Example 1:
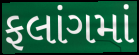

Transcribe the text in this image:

ફલાંગમાં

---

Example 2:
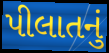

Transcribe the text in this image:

પીલાતનું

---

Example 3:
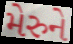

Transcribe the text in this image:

મેરુને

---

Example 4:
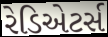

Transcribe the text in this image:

રેડિએટર્સ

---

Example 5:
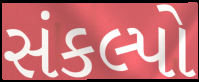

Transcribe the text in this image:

સંકલ્પો